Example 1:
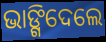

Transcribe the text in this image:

ଭାଙ୍ଗିଦେଲେ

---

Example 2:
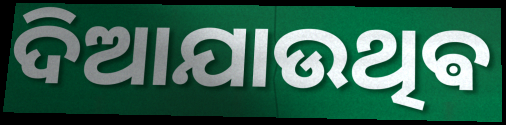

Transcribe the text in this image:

ଦିଆଯାଉଥିଵ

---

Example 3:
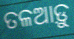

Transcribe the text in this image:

ତଳଆଡ଼ୁ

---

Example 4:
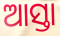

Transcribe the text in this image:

ଆସ୍ତା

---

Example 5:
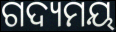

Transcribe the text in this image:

ଗଦ୍ୟମୟ